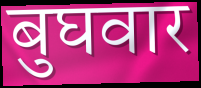
बुघवार